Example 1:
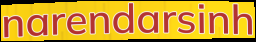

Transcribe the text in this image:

narendarsinh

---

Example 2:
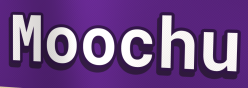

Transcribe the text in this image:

Moochu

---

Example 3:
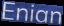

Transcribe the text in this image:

Enian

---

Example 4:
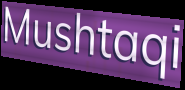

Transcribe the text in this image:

Mushtaqi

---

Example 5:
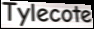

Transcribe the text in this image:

Tylecote